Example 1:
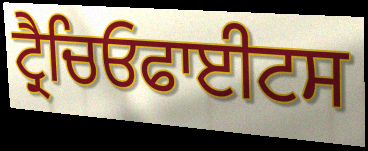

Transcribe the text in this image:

ਟ੍ਰੈਚਿਓਫਾਈਟਸ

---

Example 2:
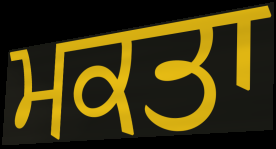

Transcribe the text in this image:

ਮਕਤਾ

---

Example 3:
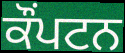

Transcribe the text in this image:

ਕੌਂਪਟਨ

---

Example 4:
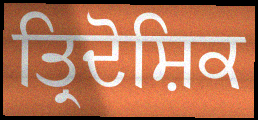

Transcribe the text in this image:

ਤ੍ਰਿਦੋਸ਼ਿਕ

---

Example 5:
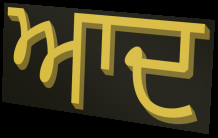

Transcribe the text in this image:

ਆਦ